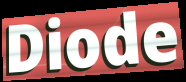
Diode